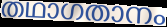
തഥാഗതാനം